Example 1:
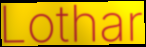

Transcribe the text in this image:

Lothar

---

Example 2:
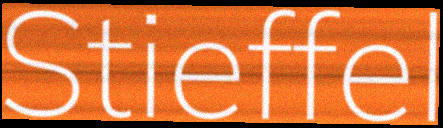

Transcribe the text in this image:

Stieffel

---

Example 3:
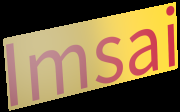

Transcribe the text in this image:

Imsai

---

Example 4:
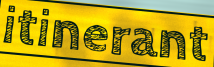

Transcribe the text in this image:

itinerant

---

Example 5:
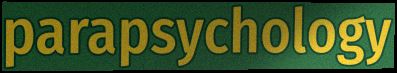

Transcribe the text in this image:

parapsychology